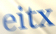
eitx